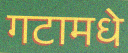
गटामधे